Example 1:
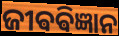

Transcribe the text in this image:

ଜୀଵଵିଜ୍ଞାନ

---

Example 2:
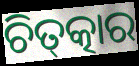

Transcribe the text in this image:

ଚିତ୍‌ତ୍କାର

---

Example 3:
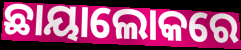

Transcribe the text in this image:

ଛାୟାଲୋକରେ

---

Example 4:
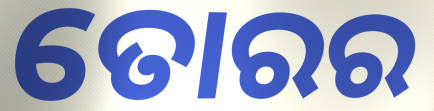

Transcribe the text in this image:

ତୋରର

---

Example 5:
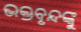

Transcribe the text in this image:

ଭକ୍ତବୃନ୍ଦଙ୍କୁ